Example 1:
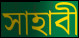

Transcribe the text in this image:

সাহাবী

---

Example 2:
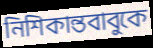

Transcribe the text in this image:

নিশিকান্তবাবুকে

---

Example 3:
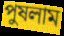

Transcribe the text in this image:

পুষলাম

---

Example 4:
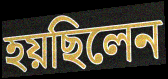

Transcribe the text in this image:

হয়ছিলেন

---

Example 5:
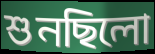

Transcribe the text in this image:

শুনছিলো